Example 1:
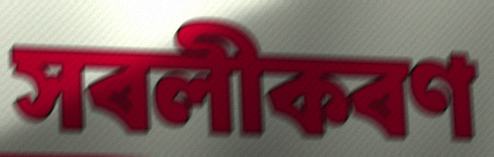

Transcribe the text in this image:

সৰলীকৰণ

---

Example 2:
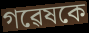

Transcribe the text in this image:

গৱেষকে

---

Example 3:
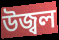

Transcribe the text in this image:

উজ্বল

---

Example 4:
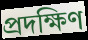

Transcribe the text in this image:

প্ৰদক্ষিণ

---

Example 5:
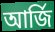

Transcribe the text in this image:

আৰ্জি